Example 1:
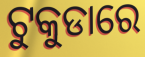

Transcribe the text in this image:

ଟୁକୁଡାରେ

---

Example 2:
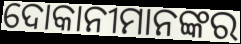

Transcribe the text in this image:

ଦୋକାନୀମାନଙ୍କର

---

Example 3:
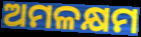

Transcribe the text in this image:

ଅମଳକ୍ଷମ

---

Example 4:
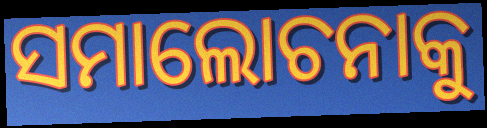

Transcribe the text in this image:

ସମାଲୋଚନାକୁ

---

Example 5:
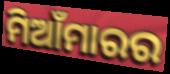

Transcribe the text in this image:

ମିଆଁମାରର